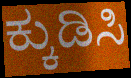
ಕ್ಕುಡಿಸಿ